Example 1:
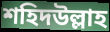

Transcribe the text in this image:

শহিদউল্লাহ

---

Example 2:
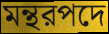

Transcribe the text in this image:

মন্থরপদে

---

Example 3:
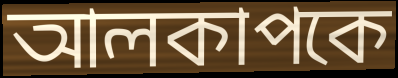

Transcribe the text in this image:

আলকাপকে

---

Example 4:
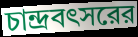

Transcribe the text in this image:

চান্দ্রবৎসরের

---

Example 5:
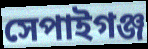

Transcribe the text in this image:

সেপাইগঞ্জ